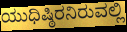
ಯುಧಿಷ್ಠಿರನಿರುವಲ್ಲಿ